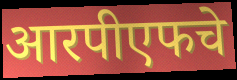
आरपीएफचे